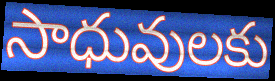
సాధువులకు